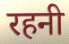
रहनी